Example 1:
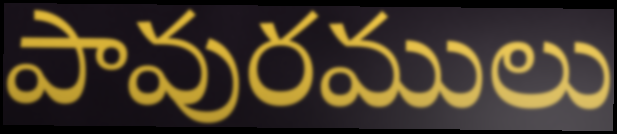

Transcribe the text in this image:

పావురములు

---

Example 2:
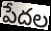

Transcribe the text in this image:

పేదల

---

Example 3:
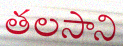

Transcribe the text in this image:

తలసాని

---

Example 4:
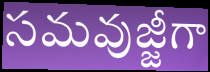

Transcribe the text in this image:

సమవుజ్జీగా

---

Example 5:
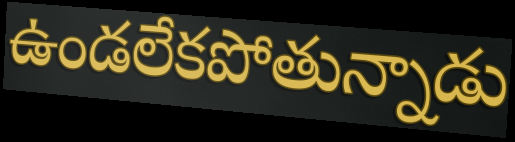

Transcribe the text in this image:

ఉండలేకపోతున్నాడు